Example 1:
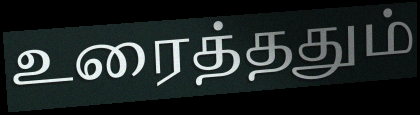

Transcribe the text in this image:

உரைத்ததும்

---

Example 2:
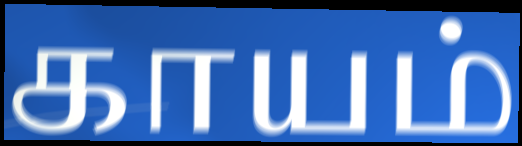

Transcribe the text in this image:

காயம்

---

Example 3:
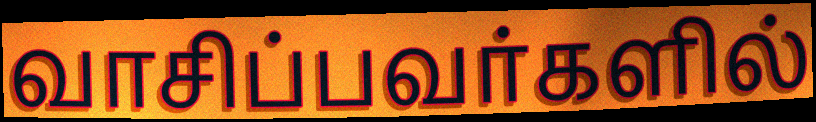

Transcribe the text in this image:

வாசிப்பவர்களில்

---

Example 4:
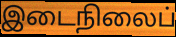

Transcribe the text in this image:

இடைநிலைப்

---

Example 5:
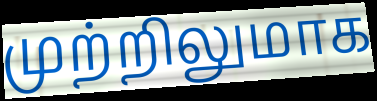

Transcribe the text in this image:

முற்றிலுமாக